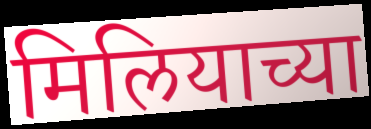
मिलियाच्या